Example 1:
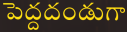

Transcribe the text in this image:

పెద్దదండుగా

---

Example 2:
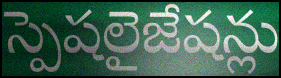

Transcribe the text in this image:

స్పెషలైజేషన్లు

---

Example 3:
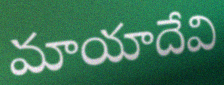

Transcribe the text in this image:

మాయాదేవి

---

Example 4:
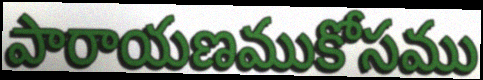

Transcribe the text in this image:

పారాయణముకోసము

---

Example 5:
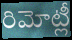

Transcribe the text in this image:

రిమోట్లీ